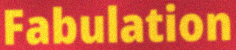
Fabulation